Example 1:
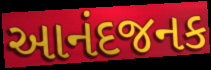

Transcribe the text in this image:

આનંદજનક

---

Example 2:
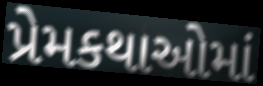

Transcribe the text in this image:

પ્રેમકથાઓમાં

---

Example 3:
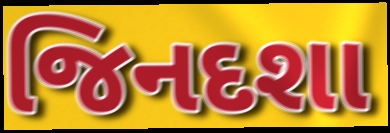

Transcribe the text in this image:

જિનદશા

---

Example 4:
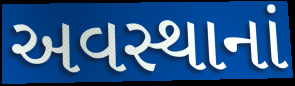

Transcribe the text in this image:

અવસ્થાનાં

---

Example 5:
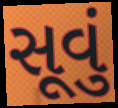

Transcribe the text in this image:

સૂવું